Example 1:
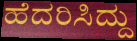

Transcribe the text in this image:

ಹೆದರಿಸಿದ್ದು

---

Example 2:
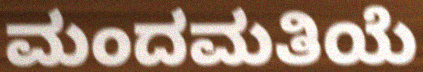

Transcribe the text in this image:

ಮಂದಮತಿಯೆ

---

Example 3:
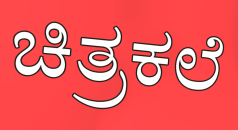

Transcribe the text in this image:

ಚಿತ್ರಕಲೆ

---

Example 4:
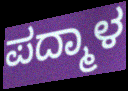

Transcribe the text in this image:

ಪದ್ಮಾಳ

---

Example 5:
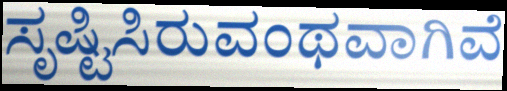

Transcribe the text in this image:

ಸೃಷ್ಟಿಸಿರುವಂಥವಾಗಿವೆ